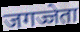
जगज्जेता